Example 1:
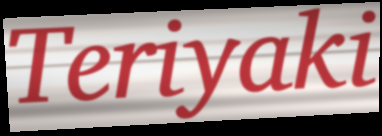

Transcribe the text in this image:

Teriyaki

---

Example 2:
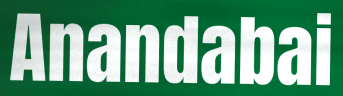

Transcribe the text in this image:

Anandabai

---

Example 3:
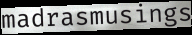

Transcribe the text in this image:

madrasmusings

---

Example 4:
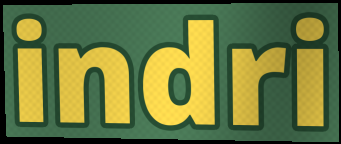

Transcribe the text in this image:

indri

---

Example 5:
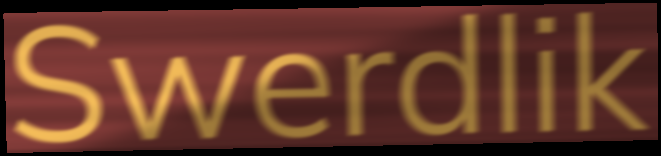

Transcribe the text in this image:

Swerdlik